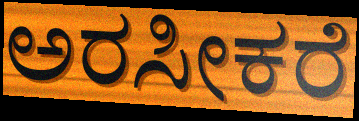
ಅರಸೀಕರೆ